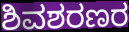
ಶಿವಶರಣರ